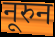
नूरुन